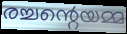
രച്ചന്റെയമ്മ